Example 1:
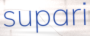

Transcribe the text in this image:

supari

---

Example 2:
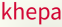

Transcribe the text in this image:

khepa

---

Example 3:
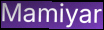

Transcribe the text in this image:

Mamiyar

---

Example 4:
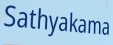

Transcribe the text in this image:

Sathyakama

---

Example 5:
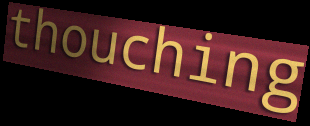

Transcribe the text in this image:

thouching